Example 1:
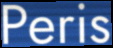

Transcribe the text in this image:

Peris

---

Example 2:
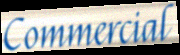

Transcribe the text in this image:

Commercial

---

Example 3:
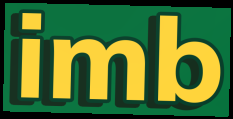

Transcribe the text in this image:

imb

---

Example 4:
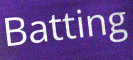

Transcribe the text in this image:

Batting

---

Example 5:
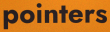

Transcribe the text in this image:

pointers